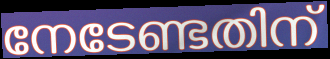
നേടേണ്ടതിന്